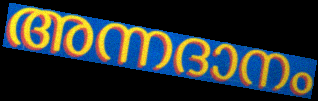
അന്നദാനം